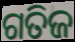
ଗତିଜ